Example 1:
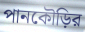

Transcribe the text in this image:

পানকৌড়ির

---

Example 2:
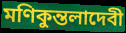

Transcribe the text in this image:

মণিকুন্তলাদেবী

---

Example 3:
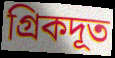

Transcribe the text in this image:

গ্রিকদূত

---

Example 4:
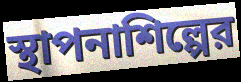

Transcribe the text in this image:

স্থাপনাশিল্পের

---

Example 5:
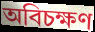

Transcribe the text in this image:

অবিচক্ষণ